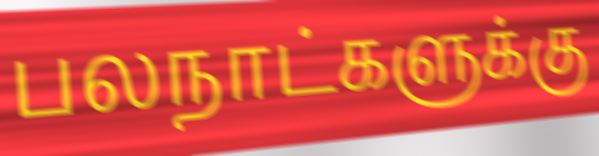
பலநாட்களுக்கு